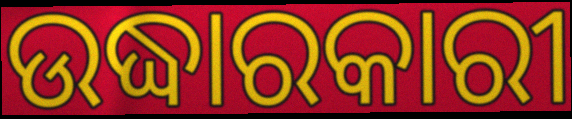
ଉଦ୍ଧାରକାରୀ